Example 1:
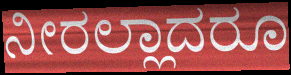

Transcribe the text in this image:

ನೀರಲ್ಲಾದರೂ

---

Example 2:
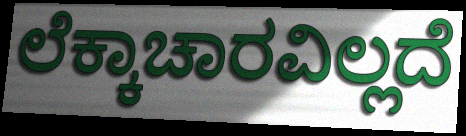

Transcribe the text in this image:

ಲೆಕ್ಕಾಚಾರವಿಲ್ಲದೆ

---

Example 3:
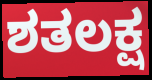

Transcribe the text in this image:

ಶತಲಕ್ಷ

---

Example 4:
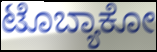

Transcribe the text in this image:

ಟೊಬ್ಯಾಕೋ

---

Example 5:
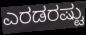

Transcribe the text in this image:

ಎರಡರಷ್ಟು